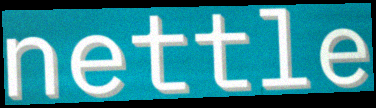
nettle